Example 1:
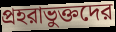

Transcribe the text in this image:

প্রহরাভুক্তদের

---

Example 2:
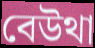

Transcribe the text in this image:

বেউথা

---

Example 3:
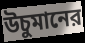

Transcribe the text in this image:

উচুমানের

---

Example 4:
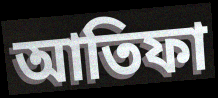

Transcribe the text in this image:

আতিফা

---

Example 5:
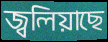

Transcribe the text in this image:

জ্বলিয়াছে